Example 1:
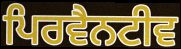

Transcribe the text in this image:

ਪਿਰਵੈਨਟੀਵ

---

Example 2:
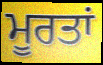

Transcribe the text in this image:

ਮੂਰਤਾਂ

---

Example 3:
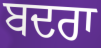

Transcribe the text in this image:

ਬਦਰਾ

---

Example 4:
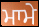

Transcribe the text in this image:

ਮਾਮੇ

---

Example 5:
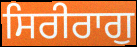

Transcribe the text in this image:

ਸਿਰੀਰਾਗੁ